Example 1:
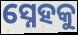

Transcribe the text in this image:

ସ୍ନେହକୁ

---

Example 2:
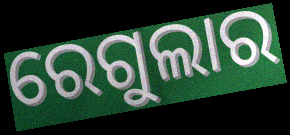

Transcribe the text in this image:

ରେଗୁଲାର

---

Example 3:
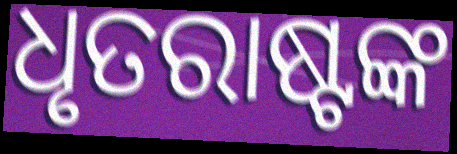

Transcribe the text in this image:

ଧୃତରାଷ୍ଟଙ୍କ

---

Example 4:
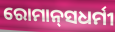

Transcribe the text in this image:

ରୋମାନ୍‌ସଧର୍ମୀ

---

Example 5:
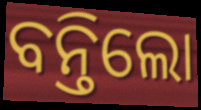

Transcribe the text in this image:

ବନ୍ତିଲୋ